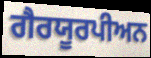
ਗੈਰਯੂਰਪੀਅਨ